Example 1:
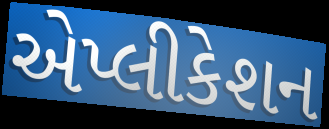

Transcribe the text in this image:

એપ્લીકેશન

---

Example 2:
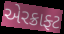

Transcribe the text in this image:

એરક્રાફ્ટ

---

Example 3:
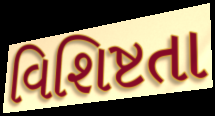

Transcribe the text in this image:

વિશિષ્ટતા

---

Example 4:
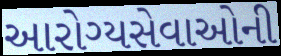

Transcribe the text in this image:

આરોગ્યસેવાઓની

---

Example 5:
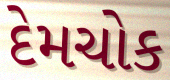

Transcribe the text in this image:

દેમચોક